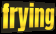
frying